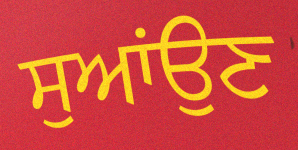
ਸੁਆਂਉਣ